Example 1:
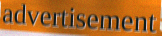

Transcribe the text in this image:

advertisement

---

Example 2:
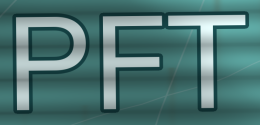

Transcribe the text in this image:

PFT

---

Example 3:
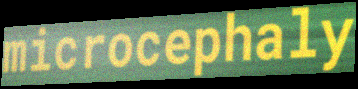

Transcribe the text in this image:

microcephaly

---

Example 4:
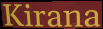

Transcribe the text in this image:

Kirana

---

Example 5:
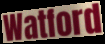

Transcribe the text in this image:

Watford